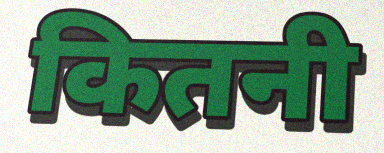
कितनी